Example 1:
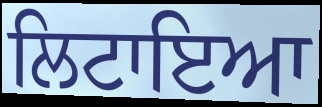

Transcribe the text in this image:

ਲਿਟਾਇਆ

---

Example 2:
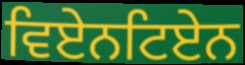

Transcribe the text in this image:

ਵਿਏਨਟਿਏਨ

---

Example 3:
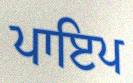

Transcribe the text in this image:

ਪਾਇਪ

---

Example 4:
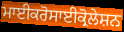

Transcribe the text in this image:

ਮਾਈਕਰੋਸਾਈਕ੍ਰੋਲੇਸ਼ਨ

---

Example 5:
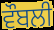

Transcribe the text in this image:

ਵੌਬਲੀ